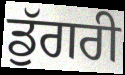
ਡੁੱਗਰੀ